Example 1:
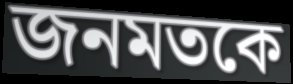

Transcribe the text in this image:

জনমতকে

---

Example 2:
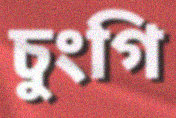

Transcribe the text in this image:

চুংগি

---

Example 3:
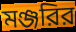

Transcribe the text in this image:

মঞ্জরির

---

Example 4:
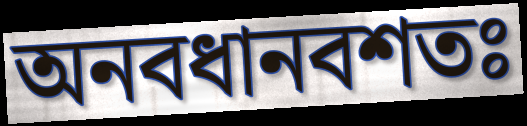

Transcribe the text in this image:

অনবধানবশতঃ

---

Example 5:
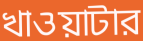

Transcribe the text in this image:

খাওয়াটার